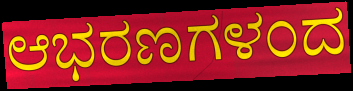
ಆಭರಣಗಳಂದ